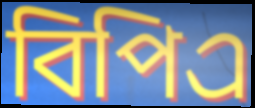
বিপিএ